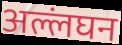
अल्लंघन